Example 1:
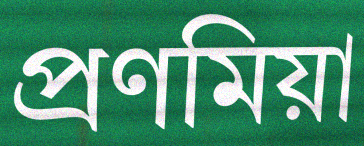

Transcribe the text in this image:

প্রণমিয়া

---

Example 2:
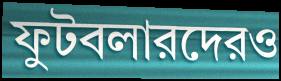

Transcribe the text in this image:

ফুটবলারদেরও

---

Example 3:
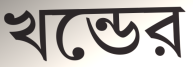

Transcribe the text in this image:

খন্ডের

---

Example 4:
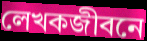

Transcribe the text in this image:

লেখকজীবনে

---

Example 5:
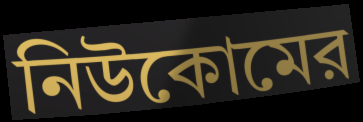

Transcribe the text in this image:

নিউকোমের